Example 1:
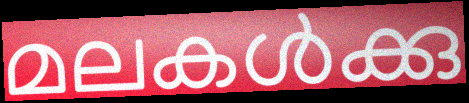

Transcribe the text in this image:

മലകൾക്കു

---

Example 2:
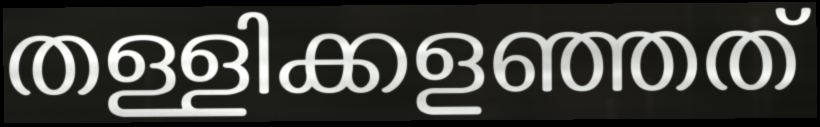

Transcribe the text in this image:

തള്ളിക്കളഞ്ഞത്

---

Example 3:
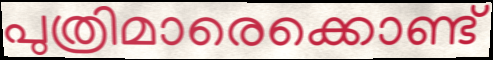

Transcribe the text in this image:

പുത്രിമാരെക്കൊണ്ട്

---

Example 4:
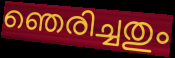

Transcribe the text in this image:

ഞെരിച്ചതും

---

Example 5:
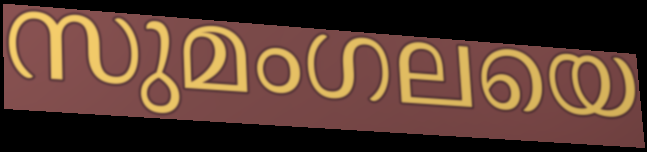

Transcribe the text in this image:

സുമംഗലയെ